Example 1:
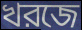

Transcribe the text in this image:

খরজে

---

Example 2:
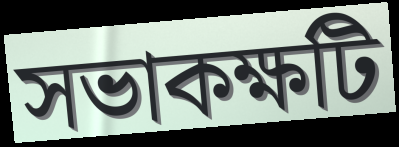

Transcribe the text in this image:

সভাকক্ষটি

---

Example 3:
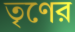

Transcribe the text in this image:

তৃণের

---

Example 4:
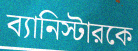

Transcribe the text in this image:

ব্যানিস্টারকে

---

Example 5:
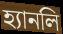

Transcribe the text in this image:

হ্যানলি